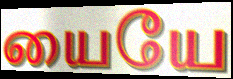
யையே